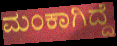
ಮಂಕಾಗಿದ್ದೆ